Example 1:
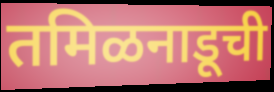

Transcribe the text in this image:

तमिळनाडूची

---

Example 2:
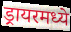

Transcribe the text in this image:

ड्रायरमध्ये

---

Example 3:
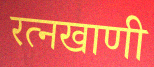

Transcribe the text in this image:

रत्नखाणी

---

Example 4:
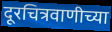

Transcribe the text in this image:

दूरचित्रवाणीच्या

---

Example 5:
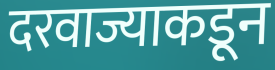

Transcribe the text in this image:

दरवाज्याकडून